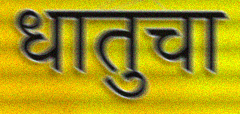
धातुचा